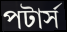
পটার্স